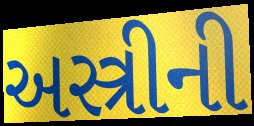
અસ્ત્રીની